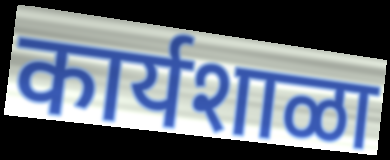
कार्यशाळा